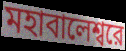
মহাবালেশ্বরে